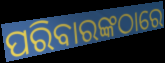
ପରିବାରଙ୍କଠାରେ